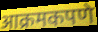
आक्रमकपणे